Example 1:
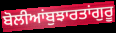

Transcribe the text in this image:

ਬੋਲੀਆਂਬੁਝਾਰਤਾਂਗੁਰੂ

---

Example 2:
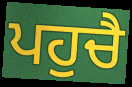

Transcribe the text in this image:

ਪਹੁਚੈ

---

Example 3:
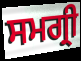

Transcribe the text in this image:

ਸਮਗ੍ਰੀ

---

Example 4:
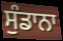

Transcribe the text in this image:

ਸੁੰਡਾਨਾ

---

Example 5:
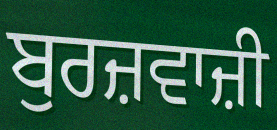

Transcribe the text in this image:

ਬੁਰਜ਼ਵਾਜ਼ੀ